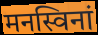
मनस्विनां